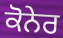
ਕੋਨੇਰ